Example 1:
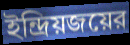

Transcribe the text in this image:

ইন্দ্রিয়জয়ের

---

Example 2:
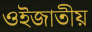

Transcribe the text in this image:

ওইজাতীয়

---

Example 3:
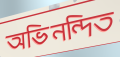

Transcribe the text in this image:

অভিনন্দিত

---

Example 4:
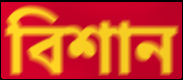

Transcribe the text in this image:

বিশান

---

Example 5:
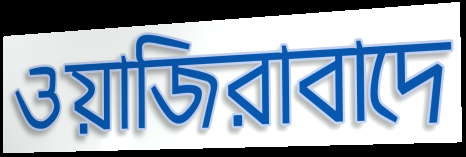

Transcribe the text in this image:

ওয়াজিরাবাদে